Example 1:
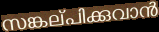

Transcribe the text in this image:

സങ്കല്‌പിക്കുവാൻ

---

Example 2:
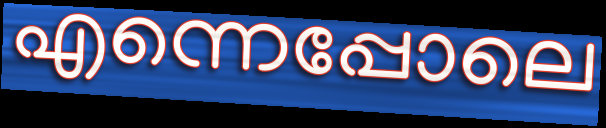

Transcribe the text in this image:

എന്നെപ്പോലെ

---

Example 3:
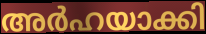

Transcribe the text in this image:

അർഹയാക്കി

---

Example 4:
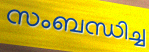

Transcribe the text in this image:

സംബന്ധിച്ച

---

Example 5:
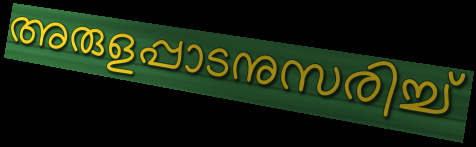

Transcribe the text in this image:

അരുളപ്പാടനുസരിച്ച്